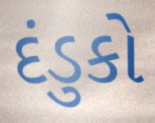
દંડુકો